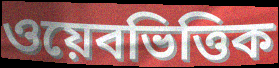
ওয়েবভিত্তিক